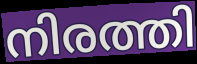
നിരത്തി